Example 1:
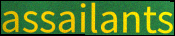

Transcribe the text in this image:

assailants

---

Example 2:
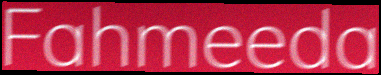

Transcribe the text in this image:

Fahmeeda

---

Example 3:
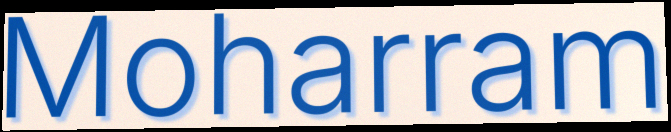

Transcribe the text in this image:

Moharram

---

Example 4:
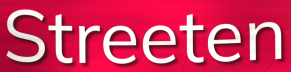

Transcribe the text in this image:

Streeten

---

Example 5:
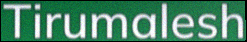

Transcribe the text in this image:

Tirumalesh